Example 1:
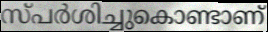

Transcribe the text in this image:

സ്പർശിച്ചുകൊണ്ടാണ്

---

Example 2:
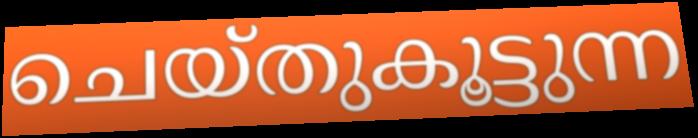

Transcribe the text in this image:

ചെയ്തുകൂട്ടുന്ന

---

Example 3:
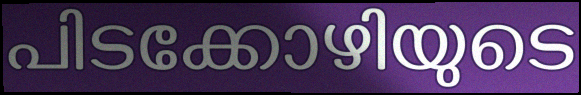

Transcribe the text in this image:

പിടക്കോഴിയുടെ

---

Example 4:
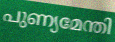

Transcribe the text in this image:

പുണ്യമേന്തി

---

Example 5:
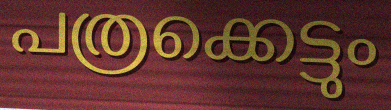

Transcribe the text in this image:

പത്രക്കെട്ടും